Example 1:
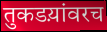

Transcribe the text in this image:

तुकडय़ांवरच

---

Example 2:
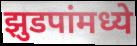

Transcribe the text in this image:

झुडपांमध्ये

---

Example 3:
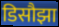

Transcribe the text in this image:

डिसौझा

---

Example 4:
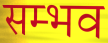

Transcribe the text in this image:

सम्भव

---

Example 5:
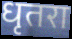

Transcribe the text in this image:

धृतरा